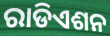
ରାଡିଏଶନ